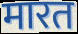
मारत